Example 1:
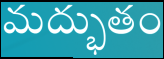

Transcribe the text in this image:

మద్భుతం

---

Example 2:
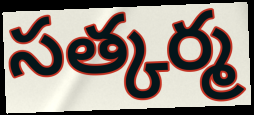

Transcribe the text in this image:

సత్కర్మ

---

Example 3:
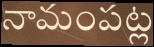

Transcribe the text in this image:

నామంపట్ల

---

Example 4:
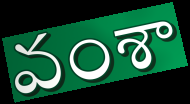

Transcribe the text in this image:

వంశా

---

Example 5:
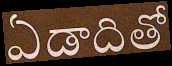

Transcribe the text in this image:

ఏడాదితో